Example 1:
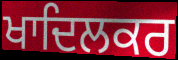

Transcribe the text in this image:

ਖਾਦਿਲਕਰ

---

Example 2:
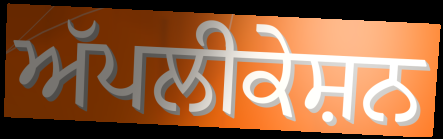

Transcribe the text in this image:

ਅੱਪਲੀਕੇਸ਼ਨ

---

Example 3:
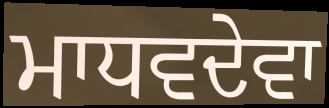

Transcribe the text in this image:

ਮਾਧਵਦੇਵਾ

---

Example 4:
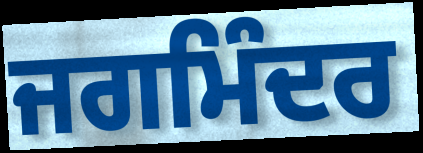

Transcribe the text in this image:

ਜਗਮਿੰਦਰ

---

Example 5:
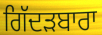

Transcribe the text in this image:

ਗਿੱਦੜਬਾਰਾ